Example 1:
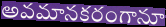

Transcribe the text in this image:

అవమానకరంగానూ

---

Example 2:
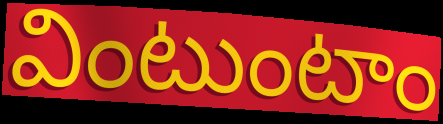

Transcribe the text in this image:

వింటుంటాం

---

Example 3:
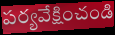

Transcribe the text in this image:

పర్యవేక్షించండి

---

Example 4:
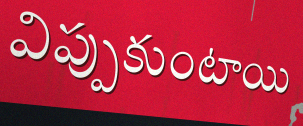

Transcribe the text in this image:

విప్పుకుంటాయి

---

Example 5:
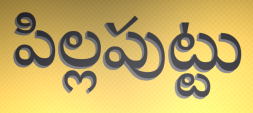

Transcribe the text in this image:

పిల్లపుట్టు